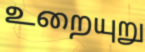
உறையுறு